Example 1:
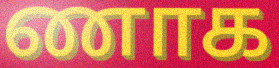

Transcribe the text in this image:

ணாக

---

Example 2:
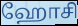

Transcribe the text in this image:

ஹோசி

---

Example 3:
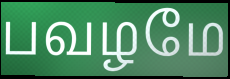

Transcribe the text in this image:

பவழமே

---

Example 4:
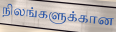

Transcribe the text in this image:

நிலங்களுக்கான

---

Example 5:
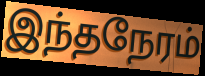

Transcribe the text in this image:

இந்தநேரம்